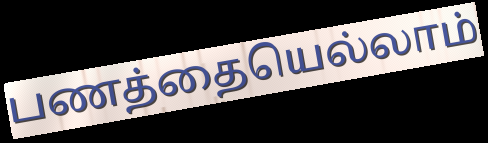
பணத்தையெல்லாம்